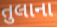
તુલાના